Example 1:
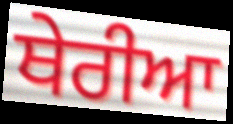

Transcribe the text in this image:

ਥੇਰੀਆ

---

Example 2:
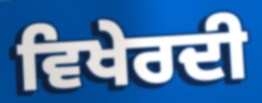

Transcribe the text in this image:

ਵਿਖੇਰਦੀ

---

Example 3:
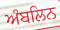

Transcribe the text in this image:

ਅੰਬਲਿਨ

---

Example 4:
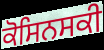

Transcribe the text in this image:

ਕੋਸਿਨਸਕੀ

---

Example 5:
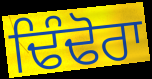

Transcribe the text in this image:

ਢਿੰਢੋਰਾ